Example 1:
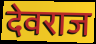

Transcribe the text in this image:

देवराज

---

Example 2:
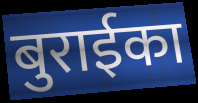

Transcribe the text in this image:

बुराईका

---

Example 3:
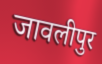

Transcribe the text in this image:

जावलीपुर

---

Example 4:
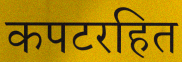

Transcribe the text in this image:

कपटरहित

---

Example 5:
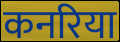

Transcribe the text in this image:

कनरिया